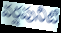
వర్షపునీటి